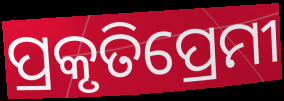
ପ୍ରକୃତିପ୍ରେମୀ